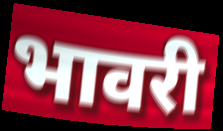
भावरी